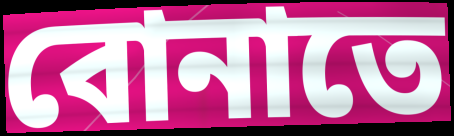
বোনাতে